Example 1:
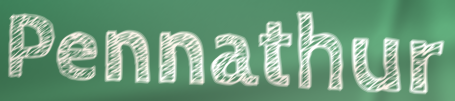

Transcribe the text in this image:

Pennathur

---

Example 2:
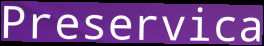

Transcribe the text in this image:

Preservica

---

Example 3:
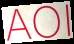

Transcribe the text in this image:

AOI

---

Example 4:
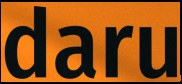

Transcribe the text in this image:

daru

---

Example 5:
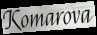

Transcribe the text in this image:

Komarova